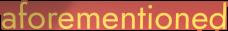
aforementioned